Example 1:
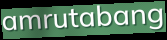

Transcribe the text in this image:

amrutabang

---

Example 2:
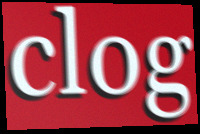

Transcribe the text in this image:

clog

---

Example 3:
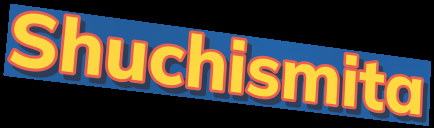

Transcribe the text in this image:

Shuchismita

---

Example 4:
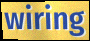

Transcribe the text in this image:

wiring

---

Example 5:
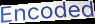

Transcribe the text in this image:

Encoded